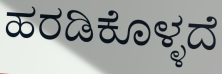
ಹರಡಿಕೊಳ್ಳದೆ